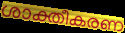
ശാക്തീകരണ